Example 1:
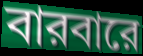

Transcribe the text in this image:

বারবারে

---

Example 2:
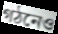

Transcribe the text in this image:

গঠনেও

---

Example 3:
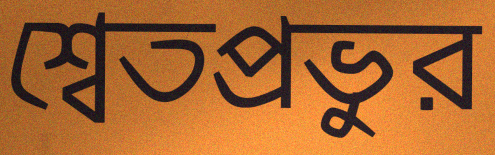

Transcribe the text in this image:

শ্বেতপ্রভুর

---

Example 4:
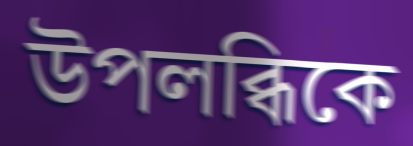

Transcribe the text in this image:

উপলব্ধিকে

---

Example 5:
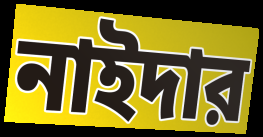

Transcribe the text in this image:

নাইদার